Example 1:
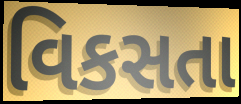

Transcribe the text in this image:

વિકસતા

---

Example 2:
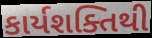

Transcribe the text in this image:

કાર્યશક્તિથી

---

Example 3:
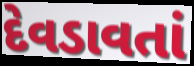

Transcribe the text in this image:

દેવડાવતાં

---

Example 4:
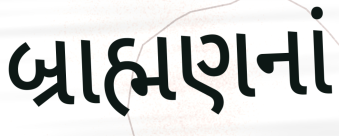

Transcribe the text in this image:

બ્રાહ્મણનાં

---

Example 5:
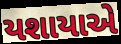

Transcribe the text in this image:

યશાયાએ